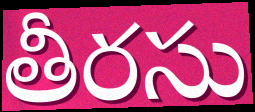
తీరసు